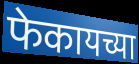
फेकायच्या